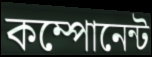
কম্পোনেন্ট